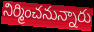
నిర్మించనున్నారు